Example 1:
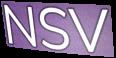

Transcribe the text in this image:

NSV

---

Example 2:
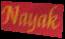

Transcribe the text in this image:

Nayak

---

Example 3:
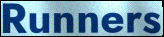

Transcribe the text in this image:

Runners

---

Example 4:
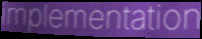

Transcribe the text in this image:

implementation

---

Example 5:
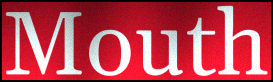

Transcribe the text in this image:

Mouth